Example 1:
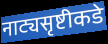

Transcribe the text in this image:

नाट्यसृष्टीकडे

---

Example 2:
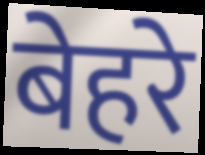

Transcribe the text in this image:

बेहरे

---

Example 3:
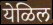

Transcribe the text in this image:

येळिल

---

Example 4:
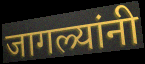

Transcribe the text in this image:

जागल्यांनी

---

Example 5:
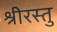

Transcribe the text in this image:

श्रीरस्तु